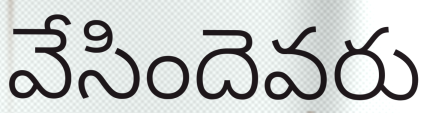
వేసిందెవరు